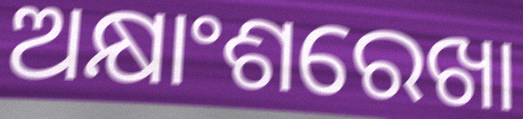
ଅକ୍ଷାଂଶରେଖା